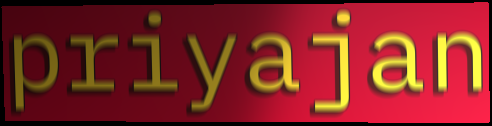
priyajan